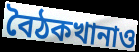
বৈঠকখানাও